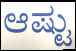
ಆಷ್ಟು